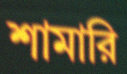
শামারি